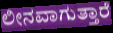
ಲೀನವಾಗುತ್ತಾರೆ